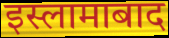
इस्लामाबाद